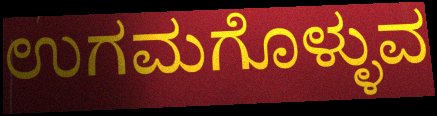
ಉಗಮಗೊಳ್ಳುವ